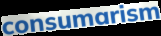
consumarism